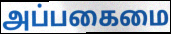
அப்பகைமை